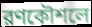
রণকৌশলে